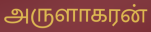
அருளாகரன்